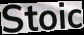
Stoic